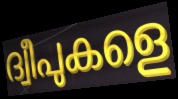
ദ്വീപുകളെ